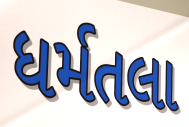
ધર્મતલા